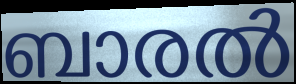
ബാരൽ